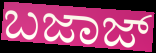
ಬಜಾಜ್